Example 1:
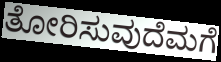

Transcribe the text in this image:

ತೋರಿಸುವುದೆಮಗೆ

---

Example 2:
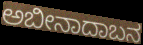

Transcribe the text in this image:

ಅಬೀನಾದಾಬನ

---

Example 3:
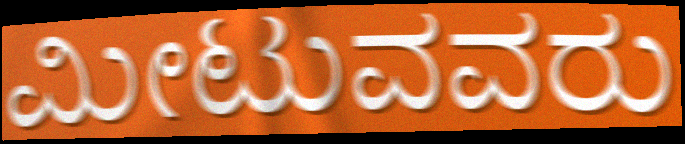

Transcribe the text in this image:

ಮೀಟುವವರು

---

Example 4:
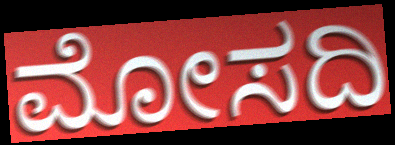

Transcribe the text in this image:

ಮೋಸದಿ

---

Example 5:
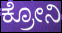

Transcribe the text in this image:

ಕ್ರೋನಿ